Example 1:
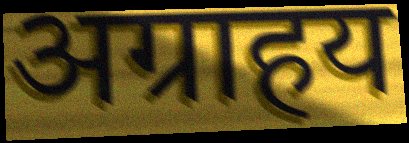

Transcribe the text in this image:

अग्राहय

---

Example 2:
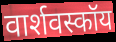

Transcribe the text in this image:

वार्शवस्कॉय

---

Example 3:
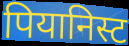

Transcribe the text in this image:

पियानिस्ट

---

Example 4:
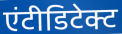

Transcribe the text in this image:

एंटीडिटेक्ट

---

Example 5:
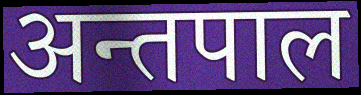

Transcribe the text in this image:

अन्तपाल